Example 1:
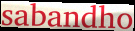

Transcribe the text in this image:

sabandho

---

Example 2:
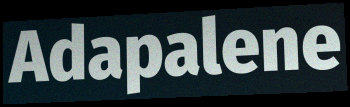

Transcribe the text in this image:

Adapalene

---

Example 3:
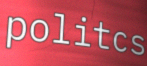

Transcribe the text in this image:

politcs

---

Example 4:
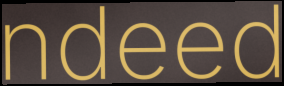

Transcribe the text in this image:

ndeed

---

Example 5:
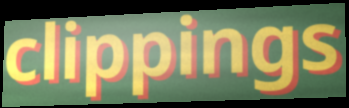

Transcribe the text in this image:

clippings